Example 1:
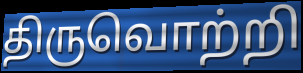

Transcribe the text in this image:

திருவொற்றி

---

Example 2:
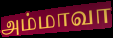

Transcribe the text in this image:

அம்மாவா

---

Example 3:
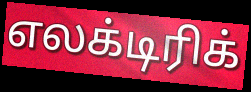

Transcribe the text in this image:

எலக்டிரிக்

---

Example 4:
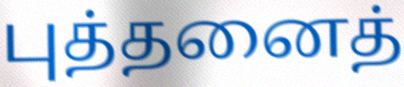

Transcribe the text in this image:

புத்தனைத்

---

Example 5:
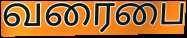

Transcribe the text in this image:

வரைபை